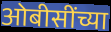
ओबीसींच्या